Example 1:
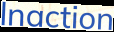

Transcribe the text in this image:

lnaction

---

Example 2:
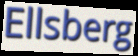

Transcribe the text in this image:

Ellsberg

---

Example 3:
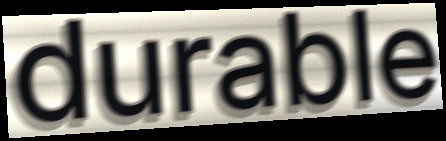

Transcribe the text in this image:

durable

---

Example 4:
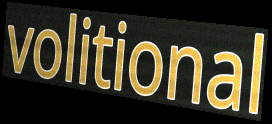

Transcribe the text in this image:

volitional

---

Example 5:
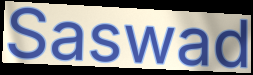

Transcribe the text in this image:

Saswad